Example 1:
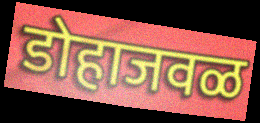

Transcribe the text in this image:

डोहाजवळ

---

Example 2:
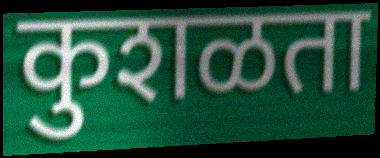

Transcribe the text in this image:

कुशळता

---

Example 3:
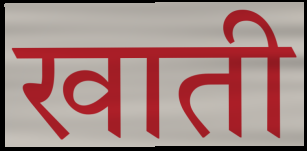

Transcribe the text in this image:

खाती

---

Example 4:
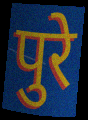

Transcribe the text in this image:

पुरे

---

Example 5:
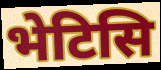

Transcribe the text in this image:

भेटिसि